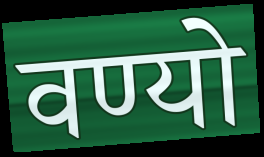
वण्यो